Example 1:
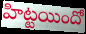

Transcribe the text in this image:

హిట్టయిందో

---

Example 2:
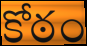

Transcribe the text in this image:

కోఠం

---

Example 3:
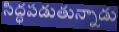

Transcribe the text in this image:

సిద్ధపడుతున్నాడు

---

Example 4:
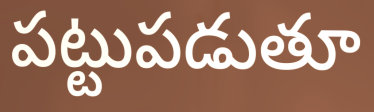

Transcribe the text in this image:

పట్టుపడుతూ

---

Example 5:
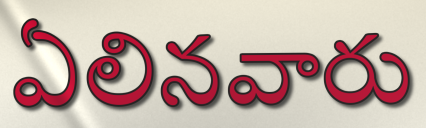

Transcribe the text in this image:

ఏలినవారు